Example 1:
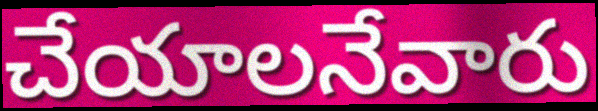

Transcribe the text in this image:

చేయాలనేవారు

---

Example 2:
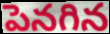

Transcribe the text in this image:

పెనగిన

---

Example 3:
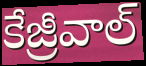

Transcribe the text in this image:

కేజ్రీవాల్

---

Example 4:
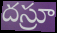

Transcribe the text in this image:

దస్రూ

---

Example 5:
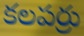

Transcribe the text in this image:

కలపర్రు